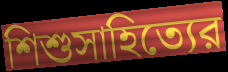
শিশুসাহিত্যের